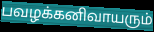
பவழக்கனிவாயரும்